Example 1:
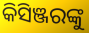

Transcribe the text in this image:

କିସିଞ୍ଜରଙ୍କୁ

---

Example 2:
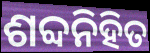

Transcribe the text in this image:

ଶବ୍ଦନିହିତ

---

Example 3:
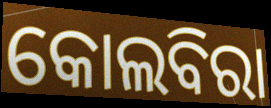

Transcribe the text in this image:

କୋଲବିରା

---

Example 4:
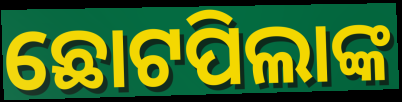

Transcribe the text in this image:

ଛୋଟପିଲାଙ୍କ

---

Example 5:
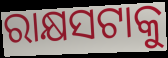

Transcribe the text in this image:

ରାକ୍ଷସଟାକୁ